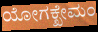
ಯೋಗಕ್ಖೇಮಂ